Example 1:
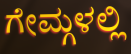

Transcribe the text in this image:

ಗೇಮ್ಗಳಲ್ಲಿ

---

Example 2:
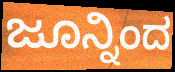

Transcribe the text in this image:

ಜೂನ್ನಿಂದ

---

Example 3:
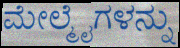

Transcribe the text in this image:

ಮೇಲ್ಮೈಗಳನ್ನು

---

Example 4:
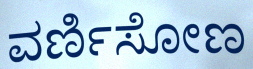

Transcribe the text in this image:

ವರ್ಣಿಸೋಣ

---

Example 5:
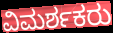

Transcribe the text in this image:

ವಿಮರ್ಶಕರು